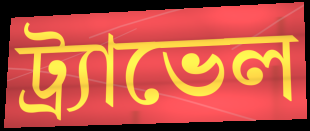
ট্র্যাভেল